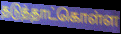
தடுத்தாட்கொள்ள